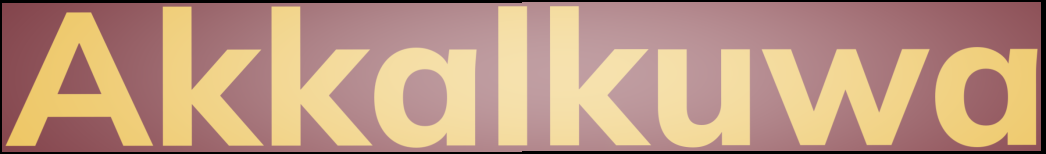
Akkalkuwa